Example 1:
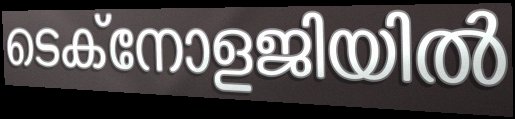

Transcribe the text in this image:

ടെക്‌നോളജിയിൽ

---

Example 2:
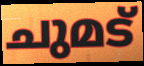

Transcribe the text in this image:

ചുമട്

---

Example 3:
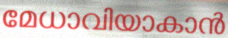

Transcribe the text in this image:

മേധാവിയാകാൻ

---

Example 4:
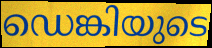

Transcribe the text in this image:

ഡെങ്കിയുടെ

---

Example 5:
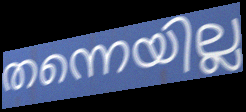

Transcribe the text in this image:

തന്നെയില്ല